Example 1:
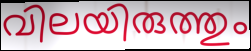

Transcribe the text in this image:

വിലയിരുത്തും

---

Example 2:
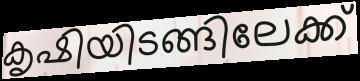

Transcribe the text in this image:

കൃഷിയിടങ്ങിലേക്ക്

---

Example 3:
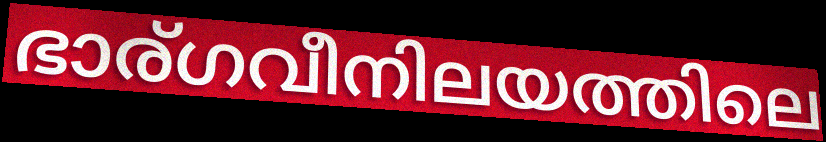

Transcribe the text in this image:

ഭാര്ഗവീനിലയത്തിലെ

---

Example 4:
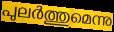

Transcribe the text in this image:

പുലർത്തുമെന്നു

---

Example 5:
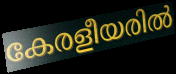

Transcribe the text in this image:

കേരളീയരിൽ